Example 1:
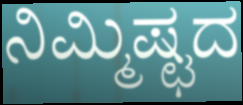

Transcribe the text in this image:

ನಿಮ್ಮಿಷ್ಟದ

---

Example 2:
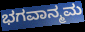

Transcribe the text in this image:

ಭಗವಾನ್ಮಮ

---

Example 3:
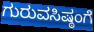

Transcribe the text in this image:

ಗುರುವಸಿಷ್ಠಂಗೆ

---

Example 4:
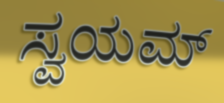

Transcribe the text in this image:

ಸ್ವಯಮ್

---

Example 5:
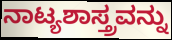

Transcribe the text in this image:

ನಾಟ್ಯಶಾಸ್ತ್ರವನ್ನು